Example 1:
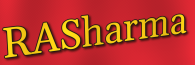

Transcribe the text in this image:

RASharma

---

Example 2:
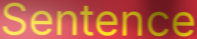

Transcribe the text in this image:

Sentence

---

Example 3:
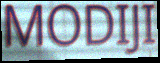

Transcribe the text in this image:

MODIJI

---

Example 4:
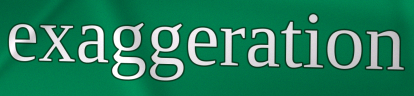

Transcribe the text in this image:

exaggeration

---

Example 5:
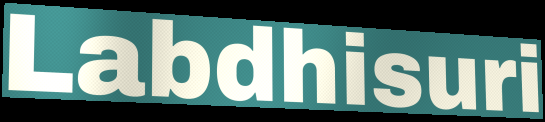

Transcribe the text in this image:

Labdhisuri